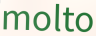
molto